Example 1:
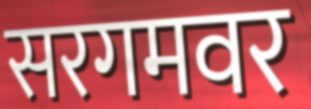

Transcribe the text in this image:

सरगमवर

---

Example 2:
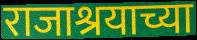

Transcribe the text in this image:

राजाश्रयाच्या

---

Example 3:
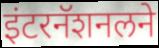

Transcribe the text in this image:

इंटरनॅशनलने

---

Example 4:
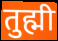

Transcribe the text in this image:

तुह्मी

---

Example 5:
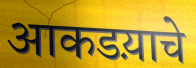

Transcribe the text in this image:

आकडय़ाचे